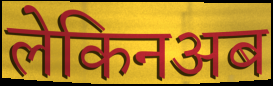
लेकिनअब